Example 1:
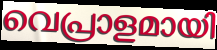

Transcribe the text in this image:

വെപ്രാളമായി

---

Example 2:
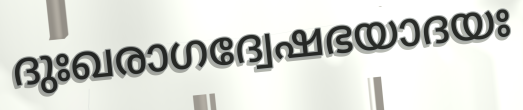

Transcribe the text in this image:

ദുഃഖരാഗദ്വേഷഭയാദയഃ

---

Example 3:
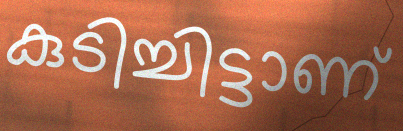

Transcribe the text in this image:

കുടിച്ചിട്ടാണ്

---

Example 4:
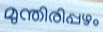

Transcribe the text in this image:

മുന്തിരിപ്പഴം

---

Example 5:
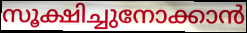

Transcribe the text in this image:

സൂക്ഷിച്ചുനോക്കാൻ